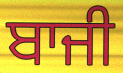
ਬਾਜੀ